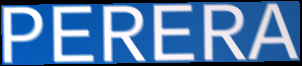
PERERA